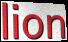
lion